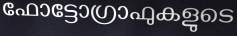
ഫോട്ടോഗ്രാഫുകളുടെ